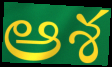
ఆశ